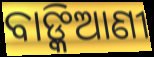
ବାଙ୍କିଆଣୀ